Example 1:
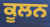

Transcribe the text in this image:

ਕੂਲਨ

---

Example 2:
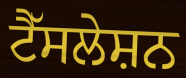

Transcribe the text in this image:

ਟੈੱਸਲੇਸ਼ਨ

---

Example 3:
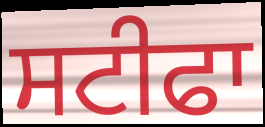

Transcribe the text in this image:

ਸਟੀਫਾ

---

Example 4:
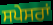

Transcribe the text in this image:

ਸਪੇਸਰਾਂ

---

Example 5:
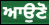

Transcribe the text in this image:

ਆਉਣੋ